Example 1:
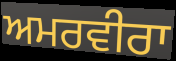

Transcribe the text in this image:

ਅਮਰਵੀਰਾ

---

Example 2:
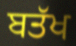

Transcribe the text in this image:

ਬਤੱਖ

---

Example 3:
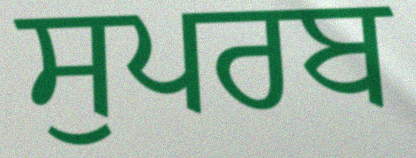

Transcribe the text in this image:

ਸੁਪਰਬ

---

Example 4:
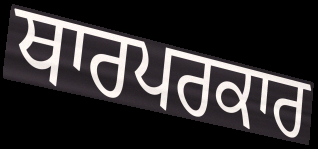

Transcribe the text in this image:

ਥਾਰਪਰਕਾਰ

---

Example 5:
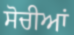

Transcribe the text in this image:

ਸੋਚੀਆਂ